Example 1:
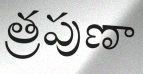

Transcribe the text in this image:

త్రపుణా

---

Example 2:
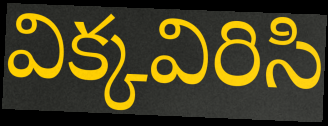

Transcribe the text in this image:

విక్కవిరిసి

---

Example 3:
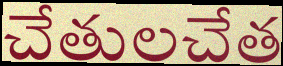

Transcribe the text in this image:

చేతులచేత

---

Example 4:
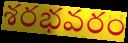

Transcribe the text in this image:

శరభవరం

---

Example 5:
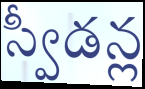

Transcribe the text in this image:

స్వీడన్ల